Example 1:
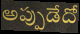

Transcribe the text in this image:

అప్పుడేదో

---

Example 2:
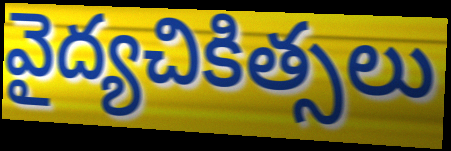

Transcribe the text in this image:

వైద్యచికిత్సలు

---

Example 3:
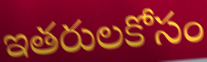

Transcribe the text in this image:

ఇతరులకోసం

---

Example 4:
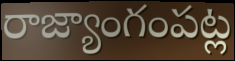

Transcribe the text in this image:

రాజ్యాంగంపట్ల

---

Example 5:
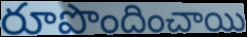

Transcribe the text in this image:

రూపొందించాయి